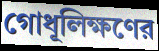
গোধূলিক্ষণের